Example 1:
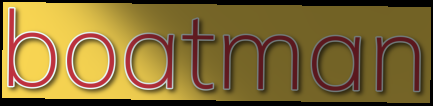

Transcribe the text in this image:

boatman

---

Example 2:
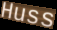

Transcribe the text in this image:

Huss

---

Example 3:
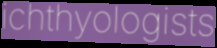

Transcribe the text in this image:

ichthyologists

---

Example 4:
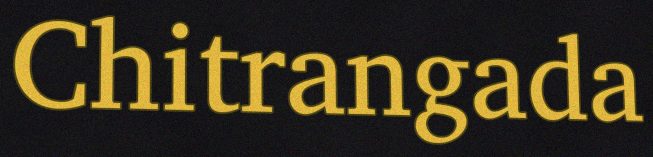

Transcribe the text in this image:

Chitrangada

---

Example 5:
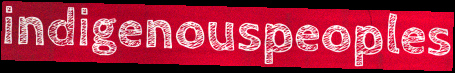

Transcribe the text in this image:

indigenouspeoples